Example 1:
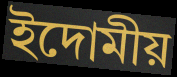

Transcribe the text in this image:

ইদোমীয়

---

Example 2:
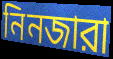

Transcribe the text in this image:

নিনজারা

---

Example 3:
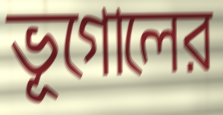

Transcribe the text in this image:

ভূগোলের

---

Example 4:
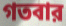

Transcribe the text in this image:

গতবার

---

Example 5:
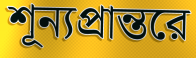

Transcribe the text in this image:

শূন্যপ্রান্তরে